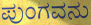
ಪುಂಗವನು